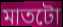
মাতটো